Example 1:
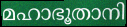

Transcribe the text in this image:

മഹാഭൂതാനി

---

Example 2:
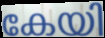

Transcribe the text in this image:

കേയി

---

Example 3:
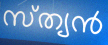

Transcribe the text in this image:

സ്‌ത്യൻ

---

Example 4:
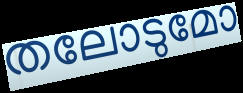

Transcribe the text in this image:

തലോടുമോ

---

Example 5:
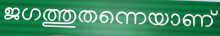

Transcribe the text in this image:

ജഗത്തുതന്നെയാണ്